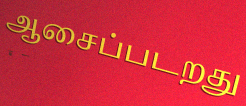
ஆசைப்படறது